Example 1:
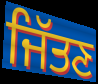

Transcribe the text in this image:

ਜਿੱਤਣ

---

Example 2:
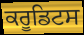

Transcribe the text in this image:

ਕਰੂਡਿਟਸ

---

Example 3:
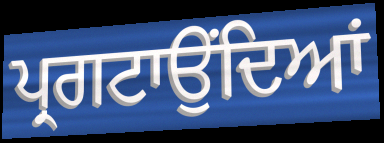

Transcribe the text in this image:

ਪ੍ਰਗਟਾਉਂਦਿਆਂ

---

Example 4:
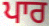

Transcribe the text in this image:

ਪਾਰ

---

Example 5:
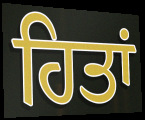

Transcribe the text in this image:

ਹਿਤਾਂ